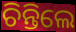
ଚିନ୍ତିଲେ